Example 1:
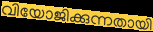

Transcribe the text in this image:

വിയോജിക്കുന്നതായി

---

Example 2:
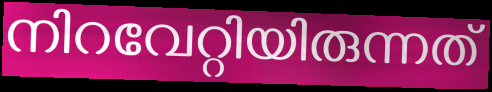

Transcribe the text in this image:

നിറവേറ്റിയിരുന്നത്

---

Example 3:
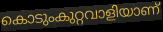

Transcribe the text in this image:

കൊടുംകുറ്റവാളിയാണ്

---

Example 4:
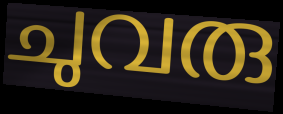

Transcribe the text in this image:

ചുവരു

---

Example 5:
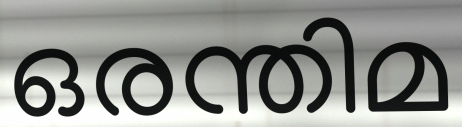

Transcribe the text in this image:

ഒരന്തിമ